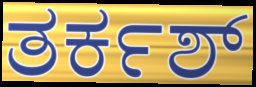
ತರ್ಕಶ್